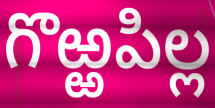
గొఱ్ఱపిల్ల